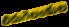
లిరుగెలంకుల